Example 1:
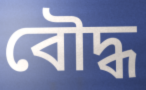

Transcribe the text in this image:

বৌদ্ধ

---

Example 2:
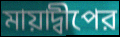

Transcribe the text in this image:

মায়াদ্বীপের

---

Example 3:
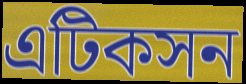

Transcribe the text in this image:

এটিকসন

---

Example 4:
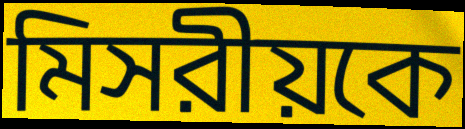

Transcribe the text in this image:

মিসরীয়কে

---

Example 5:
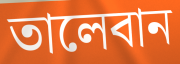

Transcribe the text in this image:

তালেবান